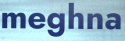
meghna